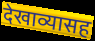
देखाव्यासह